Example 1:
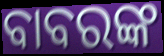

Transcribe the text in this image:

ବାବରଙ୍କ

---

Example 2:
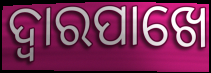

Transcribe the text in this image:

ଦ୍ୱାରପାଖେ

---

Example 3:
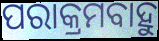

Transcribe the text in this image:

ପରାକ୍ରମବାହୁ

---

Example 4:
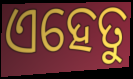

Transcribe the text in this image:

ଏହେତୁ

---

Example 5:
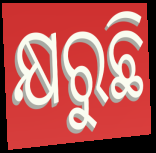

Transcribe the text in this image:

କ୍ଷରୁଛି